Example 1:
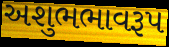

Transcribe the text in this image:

અશુભભાવરૂપ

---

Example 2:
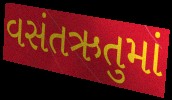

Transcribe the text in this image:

વસંતઋતુમાં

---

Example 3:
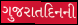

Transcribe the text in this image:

ગુજરાતદિનની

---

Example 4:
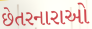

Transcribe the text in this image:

છેતરનારાઓ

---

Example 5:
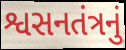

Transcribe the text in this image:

શ્વસનતંત્રનું